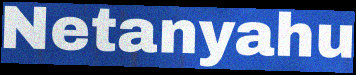
Netanyahu